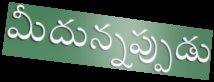
మీదున్నప్పుడు